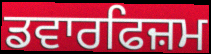
ਡਵਾਰਫਿਜ਼ਮ